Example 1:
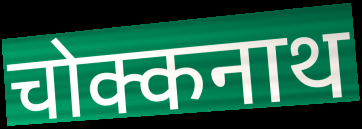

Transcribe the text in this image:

चोक्कनाथ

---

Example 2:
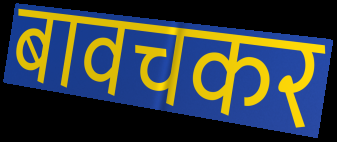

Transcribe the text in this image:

बावचकर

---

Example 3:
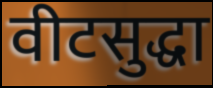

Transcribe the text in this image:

वीटसुद्धा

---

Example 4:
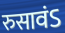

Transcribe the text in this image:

रुसावंऽ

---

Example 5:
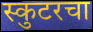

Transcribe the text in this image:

स्कुटरचा